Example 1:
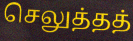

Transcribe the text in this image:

செலுத்தத்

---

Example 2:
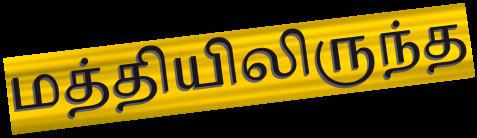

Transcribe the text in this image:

மத்தியிலிருந்த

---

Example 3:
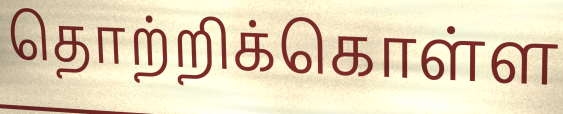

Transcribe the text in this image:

தொற்றிக்கொள்ள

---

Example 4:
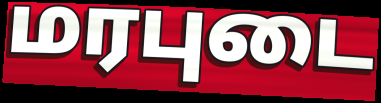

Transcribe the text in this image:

மரபுடை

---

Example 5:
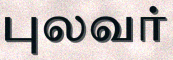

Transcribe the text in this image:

புலவர்